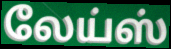
லேய்ஸ்